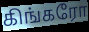
கிங்கரோ